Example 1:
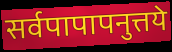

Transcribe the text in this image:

सर्वपापापनुत्तये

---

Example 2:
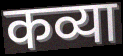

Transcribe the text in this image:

कव्या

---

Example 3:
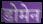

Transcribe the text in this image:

डोमेन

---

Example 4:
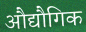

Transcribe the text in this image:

औद्यौगिक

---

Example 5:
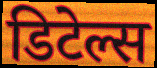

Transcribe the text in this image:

डिटेल्स